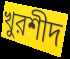
খুরশীদ